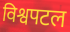
विश्वपटल